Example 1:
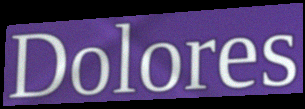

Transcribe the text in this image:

Dolores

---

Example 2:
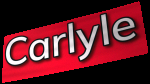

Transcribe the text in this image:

Carlyle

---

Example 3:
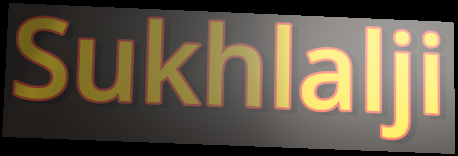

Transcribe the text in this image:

Sukhlalji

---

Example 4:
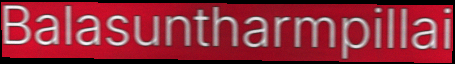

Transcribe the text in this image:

Balasuntharmpillai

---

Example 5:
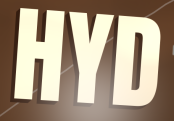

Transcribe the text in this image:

HYD